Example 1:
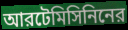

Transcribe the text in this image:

আরটেমিসিনিনের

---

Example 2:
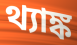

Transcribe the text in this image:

থ্যাঙ্ক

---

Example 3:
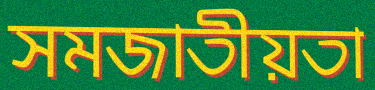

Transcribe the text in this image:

সমজাতীয়তা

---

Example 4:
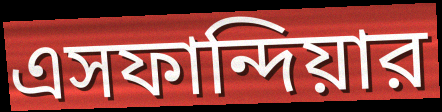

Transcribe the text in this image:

এসফান্দিয়ার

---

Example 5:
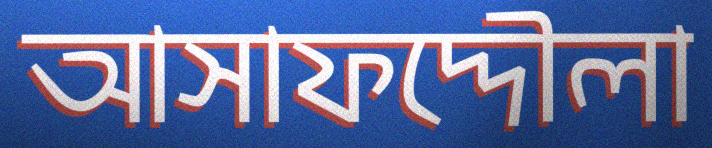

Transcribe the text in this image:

আসাফদ্দৌলা